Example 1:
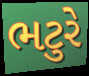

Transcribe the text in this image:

ભટુરે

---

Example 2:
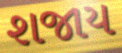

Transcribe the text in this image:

શજાય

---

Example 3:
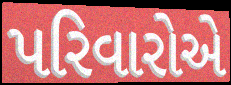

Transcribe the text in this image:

પરિવારોએ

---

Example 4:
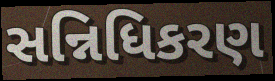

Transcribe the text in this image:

સન્નિધિકરણ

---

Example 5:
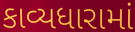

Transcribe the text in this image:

કાવ્યધારામાં